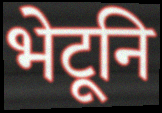
भेटूनि